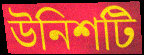
উনিশটি